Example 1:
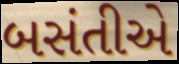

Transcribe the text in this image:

બસંતીએ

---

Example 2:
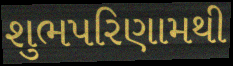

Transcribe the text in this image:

શુભપરિણામથી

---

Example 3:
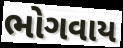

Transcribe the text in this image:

ભોગવાય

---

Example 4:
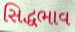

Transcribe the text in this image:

સિદ્ધભાવ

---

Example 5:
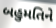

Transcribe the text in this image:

બહુમતિને